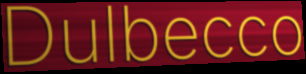
Dulbecco